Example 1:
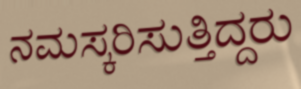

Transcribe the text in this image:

ನಮಸ್ಕರಿಸುತ್ತಿದ್ದರು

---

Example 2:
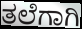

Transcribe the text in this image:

ತಲೆಗಾಗಿ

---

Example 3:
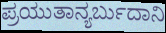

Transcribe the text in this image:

ಪ್ರಯುತಾನ್ಯರ್ಬುದಾನಿ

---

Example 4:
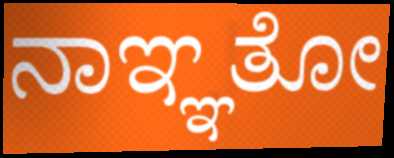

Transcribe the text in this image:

ನಾಞ್ಞತೋ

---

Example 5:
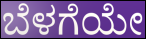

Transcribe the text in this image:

ಬೆಳಗೆಯೇ